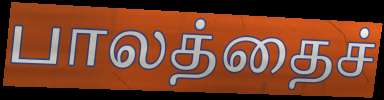
பாலத்தைச்